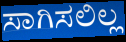
ಸಾಗಿಸಲಿಲ್ಲ